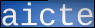
aicte